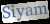
Siyam